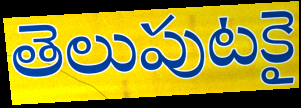
తెలుపుటకై